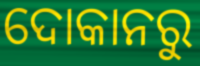
ଦୋକାନରୁ